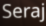
Seraj